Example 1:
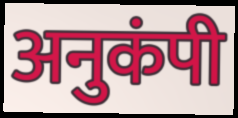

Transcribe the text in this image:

अनुकंपी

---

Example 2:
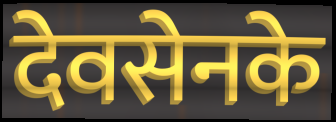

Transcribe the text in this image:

देवसेनके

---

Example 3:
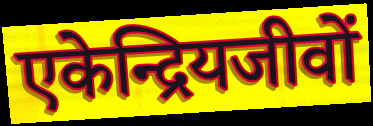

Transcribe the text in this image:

एकेन्द्रियजीवों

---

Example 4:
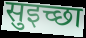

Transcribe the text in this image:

सुइच्छा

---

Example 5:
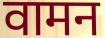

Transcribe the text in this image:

वामन